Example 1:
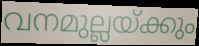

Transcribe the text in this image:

വനമുല്ലയ്ക്കും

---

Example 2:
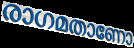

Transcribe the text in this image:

രാഗമതാണോ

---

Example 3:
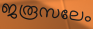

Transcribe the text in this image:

ജരൂസലേം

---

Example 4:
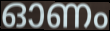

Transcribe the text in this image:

ഓണം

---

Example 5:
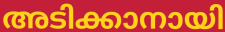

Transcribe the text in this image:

അടിക്കാനായി